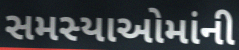
સમસ્યાઓમાંની